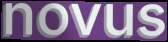
novus